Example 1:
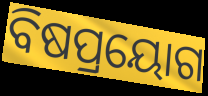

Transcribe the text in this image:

ବିଷପ୍ରୟୋଗ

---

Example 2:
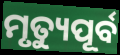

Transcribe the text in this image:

ମୃତ୍ୟୁପୂର୍ବ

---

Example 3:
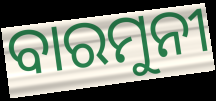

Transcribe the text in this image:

ବାରମୁନୀ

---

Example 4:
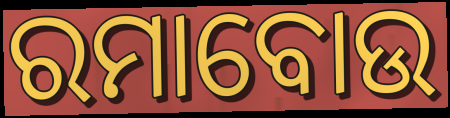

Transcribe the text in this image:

ରମାବୋଉ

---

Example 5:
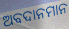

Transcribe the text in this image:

ଅବଦାନମାନ